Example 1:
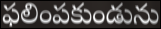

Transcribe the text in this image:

ఫలింపకుండును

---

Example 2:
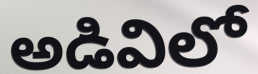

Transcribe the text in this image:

అడివిలో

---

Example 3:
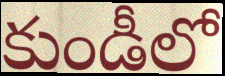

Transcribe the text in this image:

కుండీలో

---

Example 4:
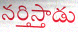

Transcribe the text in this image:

నర్తిస్తాడు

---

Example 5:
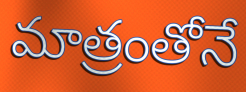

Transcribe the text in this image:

మాత్రంతోనే